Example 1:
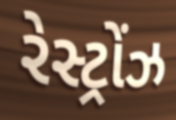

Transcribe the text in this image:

રેસ્ટ્રોંઝ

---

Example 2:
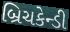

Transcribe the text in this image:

બ્રિચકેન્ડી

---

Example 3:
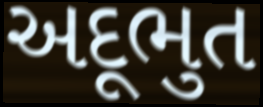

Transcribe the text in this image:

અદૂભુત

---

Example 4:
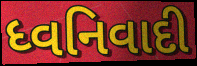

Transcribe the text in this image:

ધ્વનિવાદી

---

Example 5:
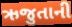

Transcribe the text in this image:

ઋજુતાની